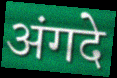
अंगदे